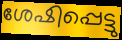
ശേഷിപ്പെട്ടു